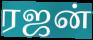
ரஜன்